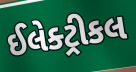
ઈલેક્ટ્રીકલ